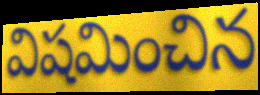
విషమించిన